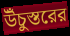
উঁচুস্তরের